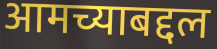
आमच्याबद्दल